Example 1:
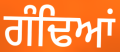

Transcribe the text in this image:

ਗੰਢਿਆਂ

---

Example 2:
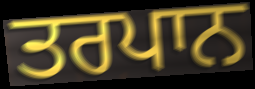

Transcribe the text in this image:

ਤਰਪਾਨ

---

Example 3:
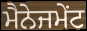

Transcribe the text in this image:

ਮੈਨੇਜਮੇੰਟ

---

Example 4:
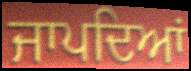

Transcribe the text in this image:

ਜਾਪਦਿਆਂ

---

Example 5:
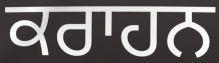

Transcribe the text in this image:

ਕਰਾਹਨ